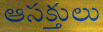
ఆసక్తులు